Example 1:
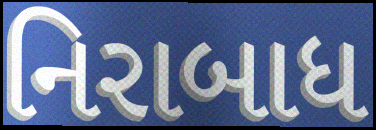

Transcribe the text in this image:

નિરાબાધ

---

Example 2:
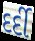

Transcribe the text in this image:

દર્દી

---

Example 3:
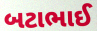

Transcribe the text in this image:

બટાભાઈ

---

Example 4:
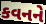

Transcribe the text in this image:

કવનને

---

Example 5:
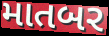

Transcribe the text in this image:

માતબર